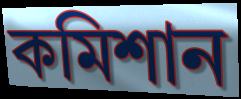
কমিশান